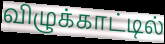
விழுக்காட்டில்